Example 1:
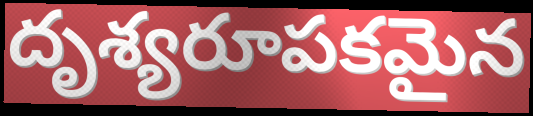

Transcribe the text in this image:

దృశ్యరూపకమైన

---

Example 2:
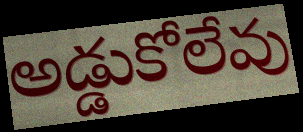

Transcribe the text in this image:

అడ్డుకోలేవు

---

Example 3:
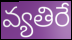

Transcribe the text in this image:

వ్యతిరే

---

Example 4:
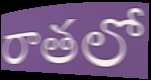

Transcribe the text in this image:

రాతలో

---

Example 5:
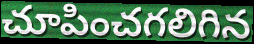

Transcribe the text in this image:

చూపించగలిగిన